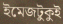
ইমেজটুকুই